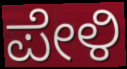
ಪೇಳಿ